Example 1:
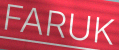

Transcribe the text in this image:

FARUK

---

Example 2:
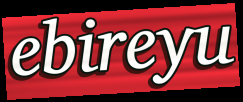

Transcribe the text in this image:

ebireyu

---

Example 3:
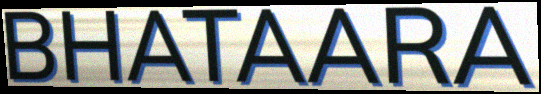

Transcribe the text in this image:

BHATAARA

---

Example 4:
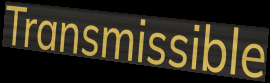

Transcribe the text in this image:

Transmissible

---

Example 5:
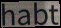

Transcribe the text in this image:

habt